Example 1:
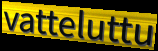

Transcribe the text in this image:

vatteluttu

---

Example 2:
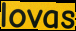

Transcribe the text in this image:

lovas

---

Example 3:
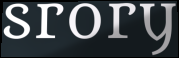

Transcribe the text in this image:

srory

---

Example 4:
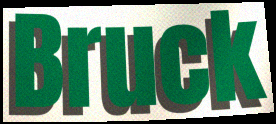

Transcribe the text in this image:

Bruck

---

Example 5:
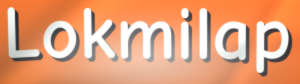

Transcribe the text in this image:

Lokmilap